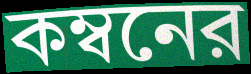
কম্বনের